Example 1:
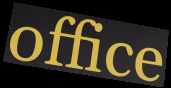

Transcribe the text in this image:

office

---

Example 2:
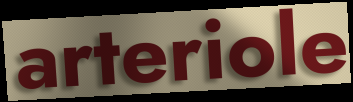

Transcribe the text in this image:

arteriole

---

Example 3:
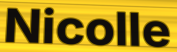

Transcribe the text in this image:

Nicolle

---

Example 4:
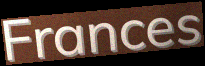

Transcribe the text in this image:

Frances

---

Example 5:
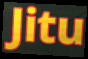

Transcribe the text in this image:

Jitu